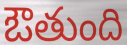
ఔతుంది